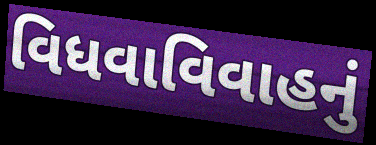
વિધવાવિવાહનું